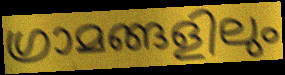
ഗ്രാമങ്ങളിലും